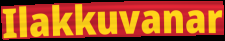
Ilakkuvanar